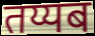
तय्यब